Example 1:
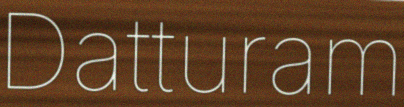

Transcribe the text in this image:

Datturam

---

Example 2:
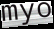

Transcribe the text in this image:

myo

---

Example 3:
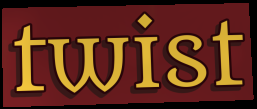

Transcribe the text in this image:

twist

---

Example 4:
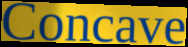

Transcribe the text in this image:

Concave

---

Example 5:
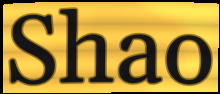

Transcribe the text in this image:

Shao